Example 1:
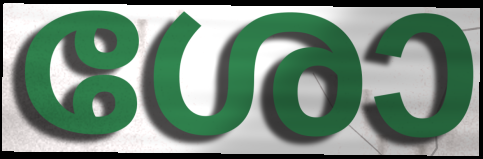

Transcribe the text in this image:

ശോ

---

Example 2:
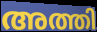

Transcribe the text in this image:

അത്തി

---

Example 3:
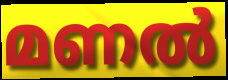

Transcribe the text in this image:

മണൽ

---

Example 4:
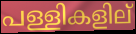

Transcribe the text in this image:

പള്ളികളില്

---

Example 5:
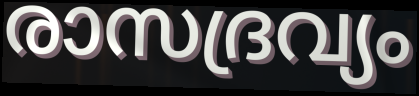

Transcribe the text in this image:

രാസദ്രവ്യം